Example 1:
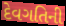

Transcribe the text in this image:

દેવગતિની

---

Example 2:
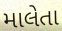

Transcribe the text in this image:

માલેતા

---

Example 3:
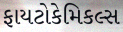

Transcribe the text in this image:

ફાયટોકેમિકલ્સ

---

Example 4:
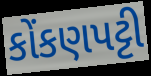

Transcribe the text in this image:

કોંકણપટ્ટી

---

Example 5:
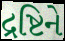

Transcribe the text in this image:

દ્રષ્ટિને